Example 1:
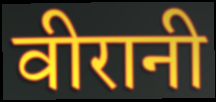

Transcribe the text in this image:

वीरानी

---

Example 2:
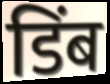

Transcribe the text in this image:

डिंब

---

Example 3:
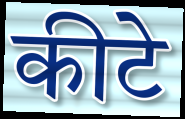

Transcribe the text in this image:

कीटे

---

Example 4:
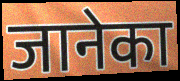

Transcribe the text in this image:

जानेका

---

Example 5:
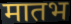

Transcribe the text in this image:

मातभ